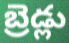
బ్రెడ్లు